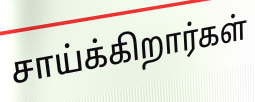
சாய்க்கிறார்கள்